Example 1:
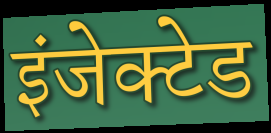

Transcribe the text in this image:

इंजेक्टेड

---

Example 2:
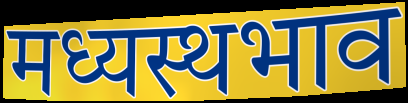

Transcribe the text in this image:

मध्यस्थभाव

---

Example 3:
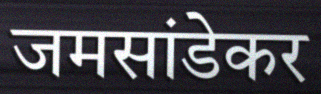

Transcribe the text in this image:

जमसांडेकर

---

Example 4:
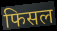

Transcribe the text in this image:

फिसल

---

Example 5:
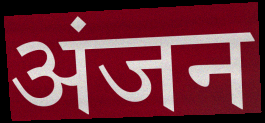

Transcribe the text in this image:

अंजन